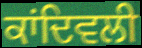
ਕਾਂਦਿਵਲੀ